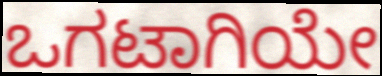
ಒಗಟಾಗಿಯೇ